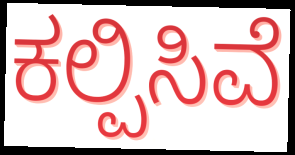
ಕಲ್ಪಿಸಿವೆ